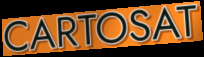
CARTOSAT